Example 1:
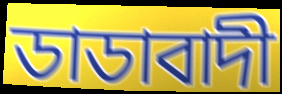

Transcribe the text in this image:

ডাডাবাদী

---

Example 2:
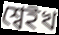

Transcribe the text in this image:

শ্বেইখ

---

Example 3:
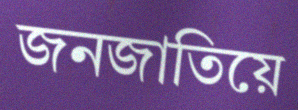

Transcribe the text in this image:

জনজাতিয়ে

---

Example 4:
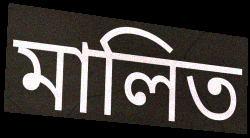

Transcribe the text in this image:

মালিত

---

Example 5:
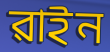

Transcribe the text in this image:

ৱাইন